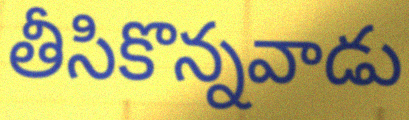
తీసికొన్నవాడు